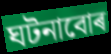
ঘটনাবোৰ